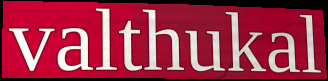
valthukal